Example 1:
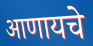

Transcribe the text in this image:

आणायचे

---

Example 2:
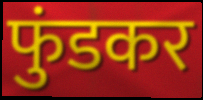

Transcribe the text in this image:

फुंडकर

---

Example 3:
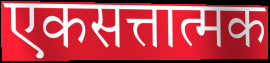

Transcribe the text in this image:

एकसत्तात्मक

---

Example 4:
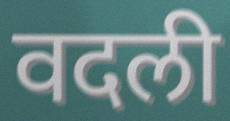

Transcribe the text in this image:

वदली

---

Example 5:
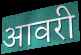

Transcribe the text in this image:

आवरी